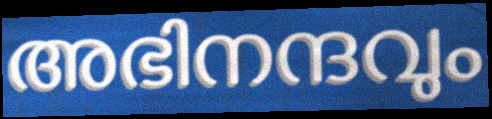
അഭിനന്ദവും